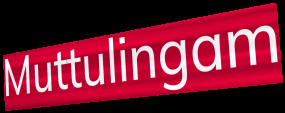
Muttulingam